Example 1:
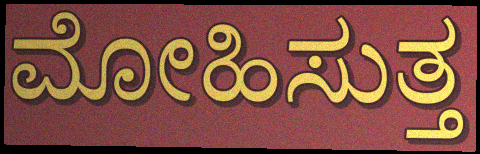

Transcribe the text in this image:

ಮೋಹಿಸುತ್ತ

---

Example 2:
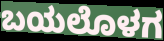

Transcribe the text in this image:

ಬಯಲೊಳಗ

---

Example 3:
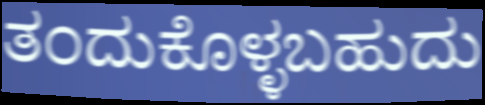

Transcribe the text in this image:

ತಂದುಕೊಳ್ಳಬಹುದು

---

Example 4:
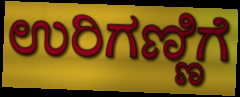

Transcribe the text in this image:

ಉರಿಗಣ್ಣಿಗೆ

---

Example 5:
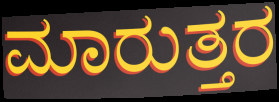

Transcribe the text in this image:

ಮಾರುತ್ತರ